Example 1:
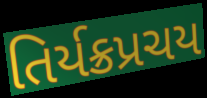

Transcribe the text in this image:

તિર્યક્રપ્રચય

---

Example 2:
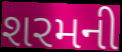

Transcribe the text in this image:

શરમની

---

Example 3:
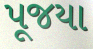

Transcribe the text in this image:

પૂજયા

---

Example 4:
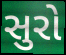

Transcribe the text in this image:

સુરો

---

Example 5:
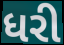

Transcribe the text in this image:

ધરી